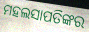
ମହଲସାପତିଙ୍କର